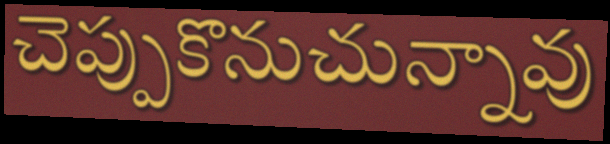
చెప్పుకొనుచున్నావు